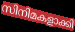
സിനിമകളാക്കി